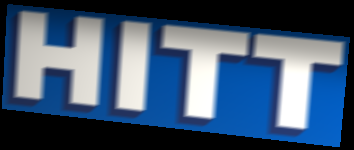
HITT